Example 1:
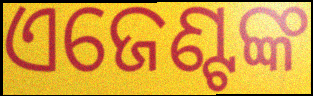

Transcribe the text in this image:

ଏଜେଣ୍ଟଙ୍କ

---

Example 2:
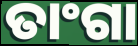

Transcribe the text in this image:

ତାଂଗା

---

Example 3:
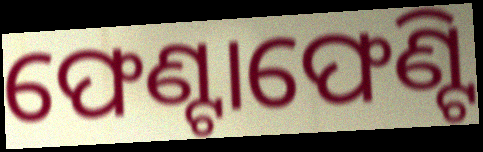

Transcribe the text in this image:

ଫେଣ୍ଟାଫେଣ୍ଟି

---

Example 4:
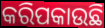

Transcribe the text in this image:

କରିପକାଉଛି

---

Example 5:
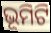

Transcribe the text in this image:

ଭୂମିଟି